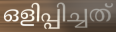
ഒളിപ്പിച്ചത്